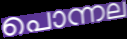
പൊന്നല